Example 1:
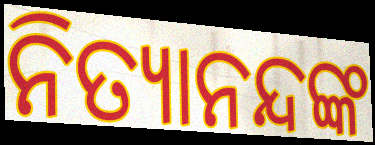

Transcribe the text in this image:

ନିତ୍ୟାନନ୍ଦଙ୍କ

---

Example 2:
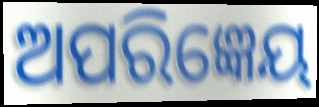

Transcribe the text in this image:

ଅପରିଜ୍ଞେୟ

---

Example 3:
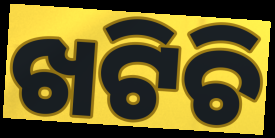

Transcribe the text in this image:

ଖଟିଚି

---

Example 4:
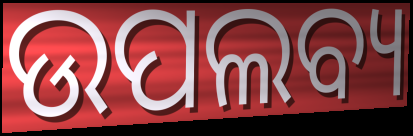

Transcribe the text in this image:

ଉପଲବ୍ୟ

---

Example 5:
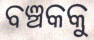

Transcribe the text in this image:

ବଞ୍ଚକକୁ